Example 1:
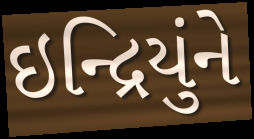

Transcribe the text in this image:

ઇન્દ્રિયુંને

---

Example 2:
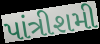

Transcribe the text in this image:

પાંત્રીશમી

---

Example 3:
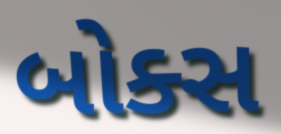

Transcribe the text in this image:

બોક્સ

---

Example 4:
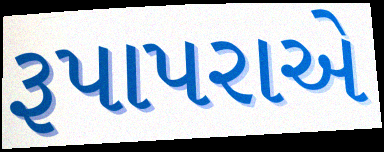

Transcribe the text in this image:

રૂપાપરાએ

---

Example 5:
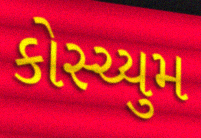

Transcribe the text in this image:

કોસ્ચ્યુમ